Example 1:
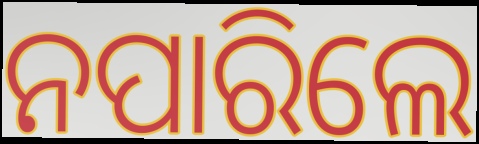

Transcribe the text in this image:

ନପାରିଲେ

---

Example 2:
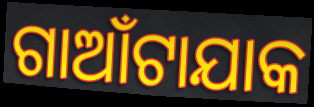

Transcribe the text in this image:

ଗାଆଁଟାଯାକ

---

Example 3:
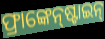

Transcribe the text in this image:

ଫ୍ରାଙ୍କେନ୍‌ଷ୍ଟାଇନ୍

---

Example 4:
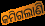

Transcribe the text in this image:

କମିଗଲାଣି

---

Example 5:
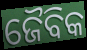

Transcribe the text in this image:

ଜୈବିକ